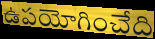
ఉపయోగించేది